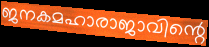
ജനകമഹാരാജാവിന്റെ